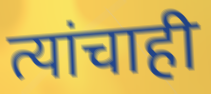
त्यांचाही